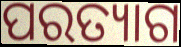
ପରତ୍ୟାଗ